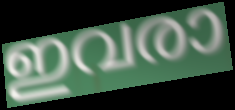
ഇവരാ